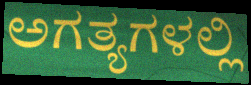
ಅಗತ್ಯಗಳಲ್ಲಿ